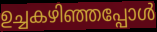
ഉച്ചകഴിഞ്ഞപ്പോൾ